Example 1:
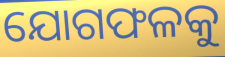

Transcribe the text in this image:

ଯୋଗଫଳକୁ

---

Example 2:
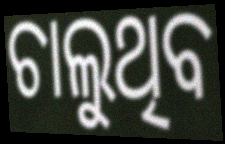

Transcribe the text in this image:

ଚାଲୁଥିବ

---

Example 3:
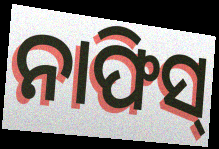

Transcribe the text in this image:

ନାଫିସ୍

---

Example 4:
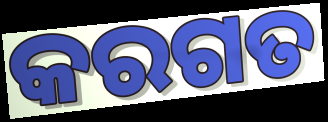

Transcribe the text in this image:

କରଗତ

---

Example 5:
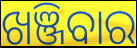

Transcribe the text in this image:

ଖଞ୍ଜିବାର